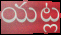
యట్ల